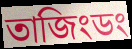
তাজিংডং